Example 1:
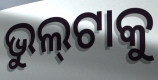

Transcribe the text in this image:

ଭୁଲ୍‍ଟାକୁ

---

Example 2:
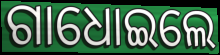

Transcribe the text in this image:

ଗାଧୋଇଲେ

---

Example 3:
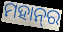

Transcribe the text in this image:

ମହାନ୍‌ର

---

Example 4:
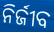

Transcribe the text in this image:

ନିର୍ଜୀବ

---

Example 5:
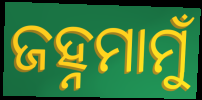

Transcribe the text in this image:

ଜହ୍ନମାମୁଁ